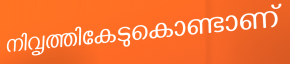
നിവൃത്തികേടുകൊണ്ടാണ്